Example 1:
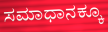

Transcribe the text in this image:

ಸಮಾಧಾನಕ್ಕೂ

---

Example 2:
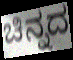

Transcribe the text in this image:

ಚಿನ್ನದ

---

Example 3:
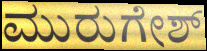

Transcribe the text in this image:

ಮುರುಗೇಶ್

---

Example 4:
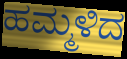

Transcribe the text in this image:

ಹಮ್ಮಳಿದ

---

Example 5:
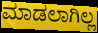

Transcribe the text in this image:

ಮಾಡಲಾಗಿಲ್ಲ